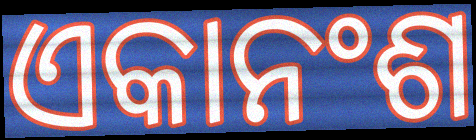
ଏକାନଂଶ